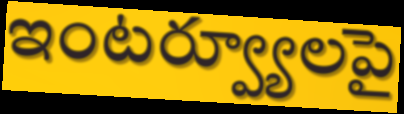
ఇంటర్వ్యూలపై